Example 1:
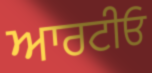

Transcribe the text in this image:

ਆਰਟੀਓ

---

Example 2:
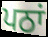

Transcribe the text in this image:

ਪਠਾਂ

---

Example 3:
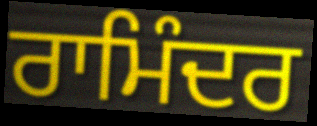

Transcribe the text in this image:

ਰਾਮਿੰਦਰ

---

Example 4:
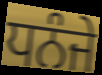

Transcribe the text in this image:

ਧਨੰਜੇ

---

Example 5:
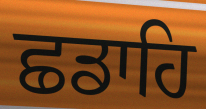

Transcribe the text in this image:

ਛਡਾਹਿ